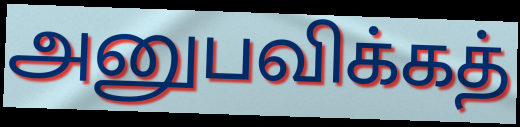
அனுபவிக்கத்